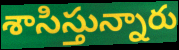
శాసిస్తున్నారు